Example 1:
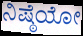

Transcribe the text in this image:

ನಿಷ್ಠೆಯೋ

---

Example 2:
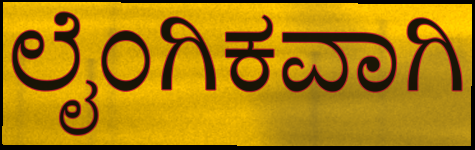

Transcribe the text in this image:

ಲೈಂಗಿಕವಾಗಿ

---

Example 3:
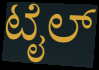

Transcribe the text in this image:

ಟೈಲ್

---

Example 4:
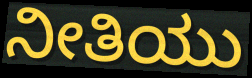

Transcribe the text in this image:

ನೀತಿಯು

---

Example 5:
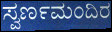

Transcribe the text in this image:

ಸ್ವರ್ಣಮಂದಿರ